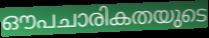
ഔപചാരികതയുടെ